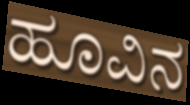
ಹೂವಿನ